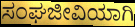
ಸಂಘಜೀವಿಯಾಗಿ